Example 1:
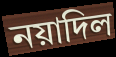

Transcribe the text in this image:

নয়াদিল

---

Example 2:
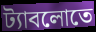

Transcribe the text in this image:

ট্যাবলোতে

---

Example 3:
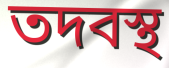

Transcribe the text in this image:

তদবস্থ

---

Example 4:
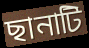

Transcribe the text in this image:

ছানাটি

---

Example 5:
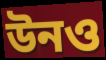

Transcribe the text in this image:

উনও